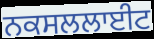
ਨਕਸਲਲਾਈਟ